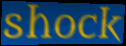
shock